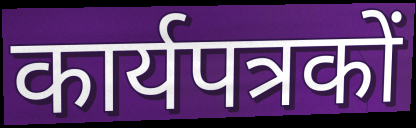
कार्यपत्रकों